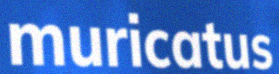
muricatus